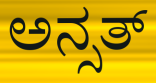
ಅನ್ಸತ್